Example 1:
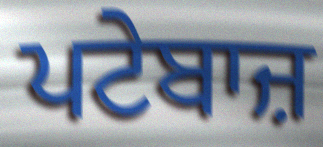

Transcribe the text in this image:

ਪਟੇਬਾਜ਼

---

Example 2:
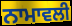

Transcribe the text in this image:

ਨਾਮਾਵਲੀ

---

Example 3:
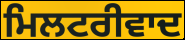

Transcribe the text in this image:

ਮਿਲਟਰੀਵਾਦ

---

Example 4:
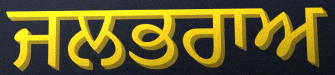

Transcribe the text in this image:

ਜਲਭਰਾਅ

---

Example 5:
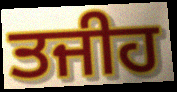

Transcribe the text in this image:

ਤਜੀਹ